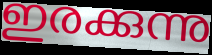
ഇരക്കുന്നു